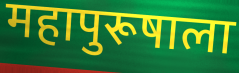
महापुरूषाला